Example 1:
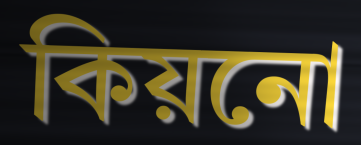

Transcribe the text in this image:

কিয়নো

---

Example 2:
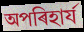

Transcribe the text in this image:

অপৰিহাৰ্য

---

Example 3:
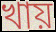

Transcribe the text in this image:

খায়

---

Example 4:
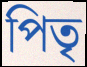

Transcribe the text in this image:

পিতৃ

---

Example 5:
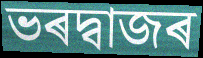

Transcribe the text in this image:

ভৰদ্বাজৰ